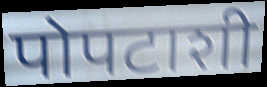
पोपटाशी